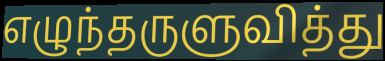
எழுந்தருளுவித்து